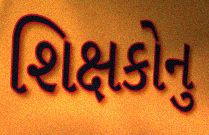
શિક્ષકોનુ